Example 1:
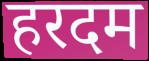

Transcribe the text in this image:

हरदम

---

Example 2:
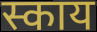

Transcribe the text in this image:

स्काय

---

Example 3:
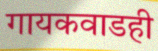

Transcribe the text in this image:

गायकवाडही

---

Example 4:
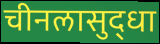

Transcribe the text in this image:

चीनलासुद्धा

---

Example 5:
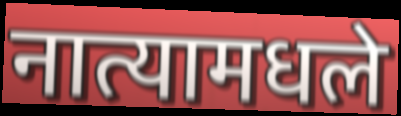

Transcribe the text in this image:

नात्यामधले